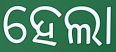
ହେଲା